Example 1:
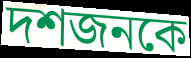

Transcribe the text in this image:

দশজনকে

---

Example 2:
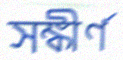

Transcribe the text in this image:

সঙ্কীর্ণ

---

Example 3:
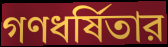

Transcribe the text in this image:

গণধর্ষিতার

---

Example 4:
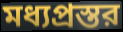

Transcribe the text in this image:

মধ্যপ্রস্তর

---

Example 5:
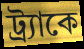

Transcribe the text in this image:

ট্র্যাকে